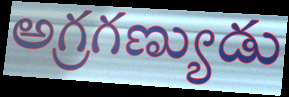
అగ్రగణ్యుడు